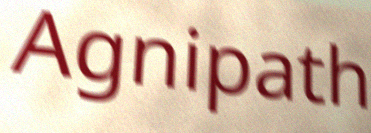
Agnipath